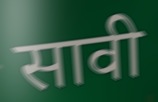
सावी